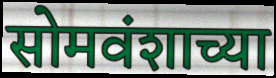
सोमवंशाच्या